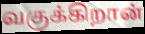
வகுக்கிறான்